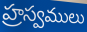
హ్రస్వములు